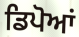
ਡਿਪੋਆਂ